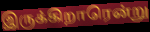
இருக்கிறாரென்று